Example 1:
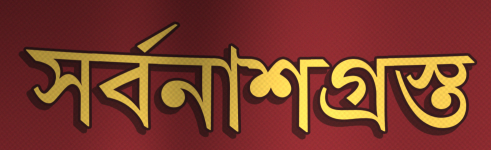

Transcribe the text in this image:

সর্বনাশগ্রস্ত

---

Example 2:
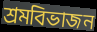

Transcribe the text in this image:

শ্রমবিভাজন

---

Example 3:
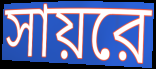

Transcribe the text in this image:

সায়রে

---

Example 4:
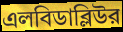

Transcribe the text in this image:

এলবিডাব্লিউর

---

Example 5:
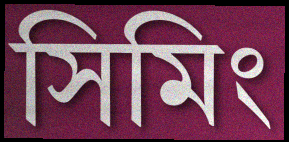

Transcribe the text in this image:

সিমিং